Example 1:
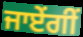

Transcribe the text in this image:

ਜਾਏਂਗੀਂ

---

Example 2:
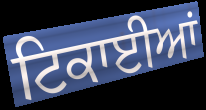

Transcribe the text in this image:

ਟਿਕਾਈਆਂ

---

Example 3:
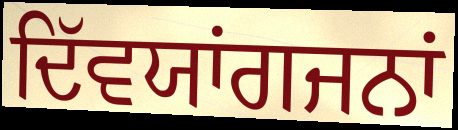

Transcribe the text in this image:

ਦਿੱਵਯਾਂਗਜਨਾਂ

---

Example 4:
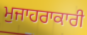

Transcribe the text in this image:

ਮੁਜਾਹਰਾਕਾਰੀ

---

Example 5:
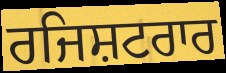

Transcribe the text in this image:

ਰਜਿਸ਼ਟਰਾਰ